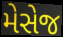
મેસેજ